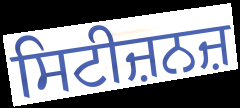
ਸਿਟੀਜ਼ਨਜ਼